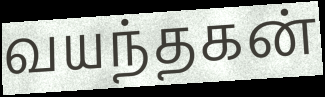
வயந்தகன்